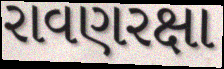
રાવણરક્ષા